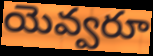
యెవ్వరూ